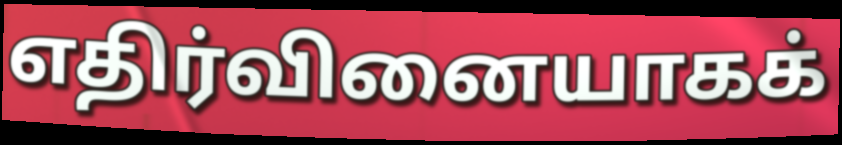
எதிர்வினையாகக்